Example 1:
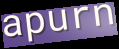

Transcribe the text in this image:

apurn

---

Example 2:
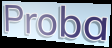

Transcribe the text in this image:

Proba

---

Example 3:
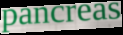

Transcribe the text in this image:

pancreas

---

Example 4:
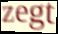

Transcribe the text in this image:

zegt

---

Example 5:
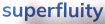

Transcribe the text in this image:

superfluity